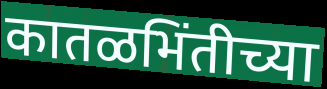
कातळभिंतीच्या